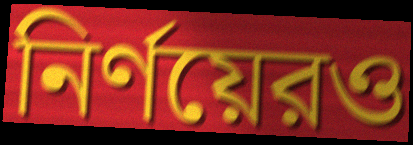
নির্ণয়েরও